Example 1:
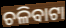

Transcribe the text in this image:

ଚଳିବାଟା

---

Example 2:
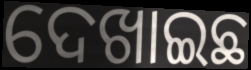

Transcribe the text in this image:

ଦେଖାଇଛ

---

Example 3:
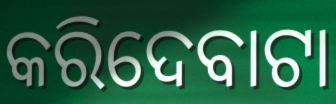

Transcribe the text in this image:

କରିଦେବାଟା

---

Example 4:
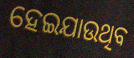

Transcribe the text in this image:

ହେଇଯାଉଥିବ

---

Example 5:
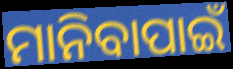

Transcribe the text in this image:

ମାନିବାପାଇଁ